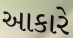
આકારે